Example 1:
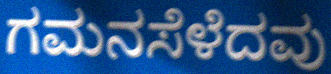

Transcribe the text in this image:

ಗಮನಸೆಳೆದವು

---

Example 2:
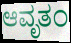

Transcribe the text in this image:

ಆವೃತಂ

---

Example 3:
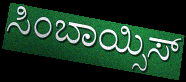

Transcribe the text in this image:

ಸಿಂಬಾಯ್ಸಿಸ್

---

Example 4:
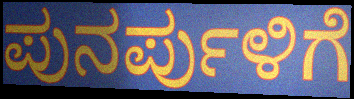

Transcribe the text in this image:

ಪುನರ್ಪುಳಿಗೆ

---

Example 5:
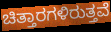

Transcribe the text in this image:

ಚಿತ್ತಾರಗಳಿರುತ್ತವೆ